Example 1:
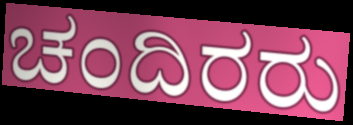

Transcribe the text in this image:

ಚಂದಿರರು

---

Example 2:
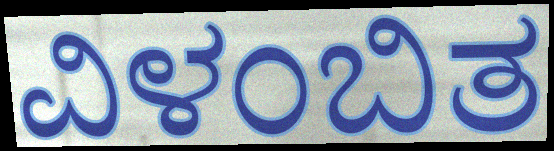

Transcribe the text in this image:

ವಿಳಂಬಿತ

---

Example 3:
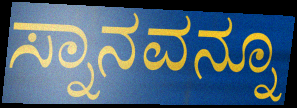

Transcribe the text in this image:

ಸ್ನಾನವನ್ನೂ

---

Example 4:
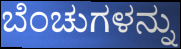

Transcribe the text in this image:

ಬೆಂಚುಗಳನ್ನು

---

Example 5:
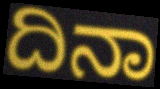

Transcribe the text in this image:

ದಿನಾ